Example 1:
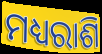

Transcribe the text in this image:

ମଧ୍ୟରାଶି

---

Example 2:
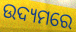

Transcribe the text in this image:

ଉଦ୍ୟମରେ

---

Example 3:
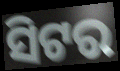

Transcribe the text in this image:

ସିଟର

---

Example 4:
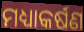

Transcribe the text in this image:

ମଧ୍ୟାକର୍ଷଣ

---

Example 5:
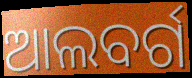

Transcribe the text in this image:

ଆଲବର୍ଗ